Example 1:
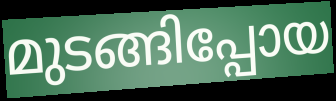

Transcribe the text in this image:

മുടങ്ങിപ്പോയ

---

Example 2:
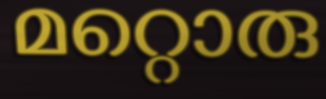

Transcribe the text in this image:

മറ്റൊരു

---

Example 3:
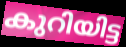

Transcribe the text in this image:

കുറിയിട്ട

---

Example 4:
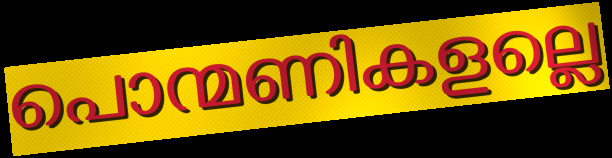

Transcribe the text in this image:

പൊന്മണികളല്ലെ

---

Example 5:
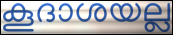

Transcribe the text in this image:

കൂദാശയല്ല